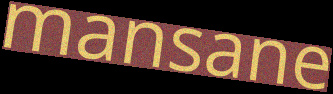
mansane